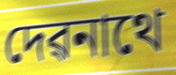
দেৱনাথে